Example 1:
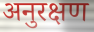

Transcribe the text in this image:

अनुरक्षण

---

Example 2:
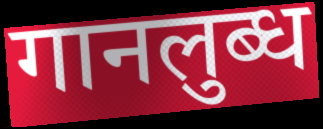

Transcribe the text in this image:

गानलुब्ध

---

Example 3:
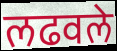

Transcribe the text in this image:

लढवले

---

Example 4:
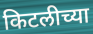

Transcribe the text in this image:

किटलीच्या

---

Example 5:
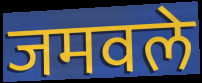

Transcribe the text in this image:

जमवले